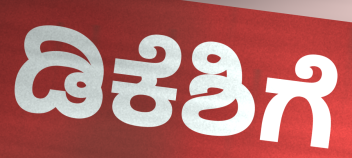
ಡಿಕೆಶಿಗೆ